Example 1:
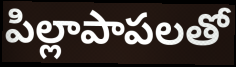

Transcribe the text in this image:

పిల్లాపాపలతో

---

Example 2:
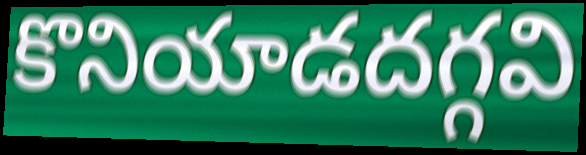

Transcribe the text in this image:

కొనియాడదగ్గవి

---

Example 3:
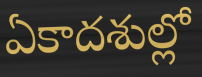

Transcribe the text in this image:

ఏకాదశుల్లో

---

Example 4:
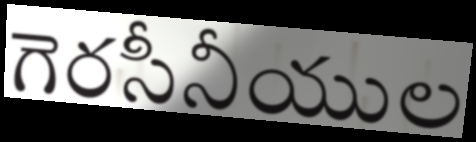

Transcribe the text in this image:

గెరసీనీయుల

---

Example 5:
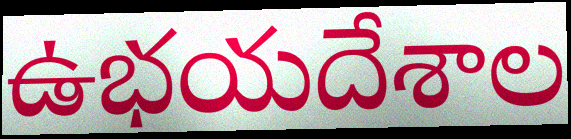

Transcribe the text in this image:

ఉభయదేశాల